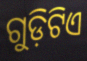
ଗୁଡ଼ିଟିଏ